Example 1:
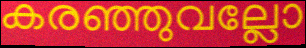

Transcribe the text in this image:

കരഞ്ഞുവല്ലോ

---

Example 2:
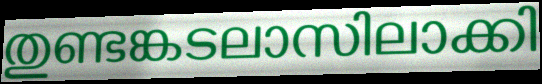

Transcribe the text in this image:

തുണ്ടങ്കടലാസിലാക്കി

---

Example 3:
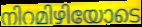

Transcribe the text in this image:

നിറമിഴിയോടെ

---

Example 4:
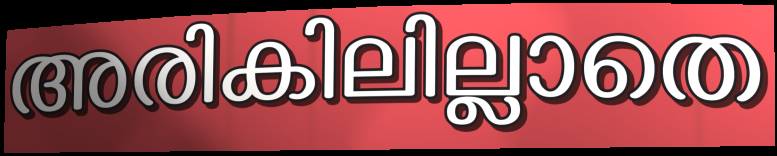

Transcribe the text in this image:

അരികിലില്ലാതെ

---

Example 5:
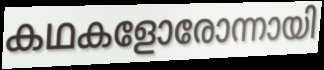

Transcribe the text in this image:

കഥകളോരോന്നായി